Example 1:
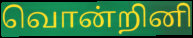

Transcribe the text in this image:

வொன்றினி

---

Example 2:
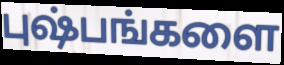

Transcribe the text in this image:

புஷ்பங்களை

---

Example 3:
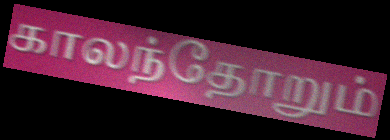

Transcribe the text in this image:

காலந்தோறும்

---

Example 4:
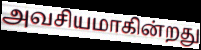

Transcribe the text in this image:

அவசியமாகின்றது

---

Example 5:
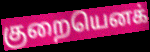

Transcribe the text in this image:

குறையெனக்